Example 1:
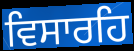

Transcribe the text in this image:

ਵਿਸਾਰਹਿ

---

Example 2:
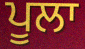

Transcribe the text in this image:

ਪੂਲਾ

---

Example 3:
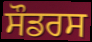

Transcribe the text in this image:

ਸੌਡਰਸ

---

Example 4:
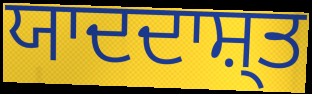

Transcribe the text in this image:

ਯਾਦਦਾਸ਼੍ਤ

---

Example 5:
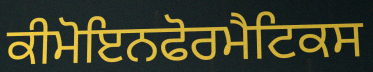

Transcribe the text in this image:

ਕੀਮੋਇਨਫੋਰਮੈਟਿਕਸ